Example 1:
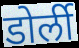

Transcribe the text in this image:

डोर्ली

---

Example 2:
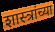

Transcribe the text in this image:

शास्त्रांच्या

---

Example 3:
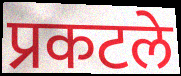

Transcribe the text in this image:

प्रकटले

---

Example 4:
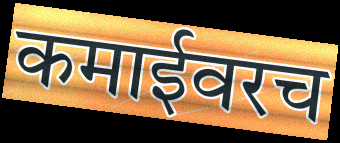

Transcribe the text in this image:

कमाईवरच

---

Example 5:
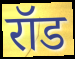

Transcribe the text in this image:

रॉड